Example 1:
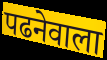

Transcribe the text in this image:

पढनेवाला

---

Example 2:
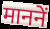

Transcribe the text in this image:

माननें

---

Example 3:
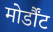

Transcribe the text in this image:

मोर्डौंट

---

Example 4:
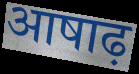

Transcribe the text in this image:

आषाढ़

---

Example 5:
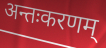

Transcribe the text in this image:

अन्तःकरणम्